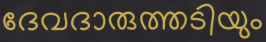
ദേവദാരുത്തടിയും